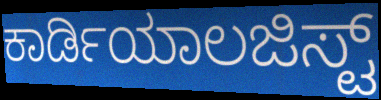
ಕಾರ್ಡಿಯಾಲಜಿಸ್ಟ್